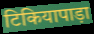
टिकियापाड़ा